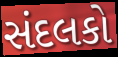
સંદલકો